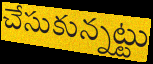
చేసుకున్నట్టు